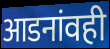
आडनांवही